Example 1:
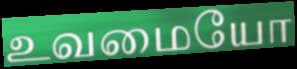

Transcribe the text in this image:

உவமையோ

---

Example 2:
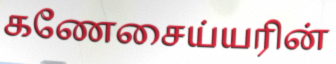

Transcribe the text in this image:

கணேசைய்யரின்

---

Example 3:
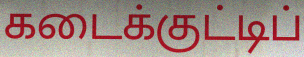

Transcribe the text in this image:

கடைக்குட்டிப்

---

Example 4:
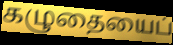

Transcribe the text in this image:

கழுதையைப்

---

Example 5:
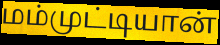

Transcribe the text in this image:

மம்முட்டியான்